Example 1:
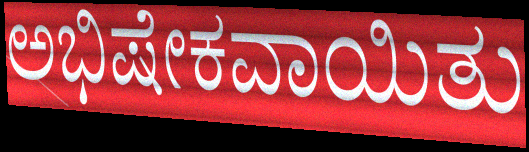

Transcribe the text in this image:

ಅಭಿಷೇಕವಾಯಿತು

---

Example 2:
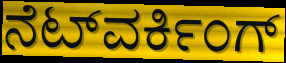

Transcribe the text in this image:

ನೆಟ್‌ವರ್ಕಿಂಗ್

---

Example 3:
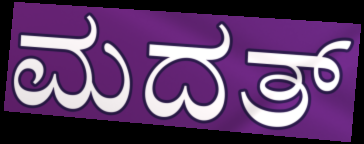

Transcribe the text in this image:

ಮದತ್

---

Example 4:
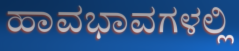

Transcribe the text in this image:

ಹಾವಭಾವಗಳಲ್ಲಿ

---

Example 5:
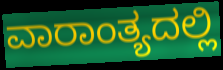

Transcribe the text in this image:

ವಾರಾಂತ್ಯದಲ್ಲಿ